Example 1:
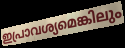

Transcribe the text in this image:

ഇപ്രാവശ്യമെങ്കിലും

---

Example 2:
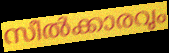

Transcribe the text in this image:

സീൽക്കാരവും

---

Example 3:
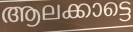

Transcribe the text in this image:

ആലക്കാട്ടെ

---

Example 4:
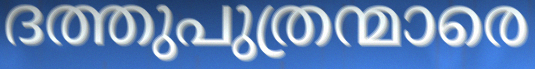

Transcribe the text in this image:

ദത്തുപുത്രന്മാരെ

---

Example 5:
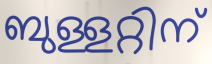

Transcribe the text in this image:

ബുള്ളറ്റിന്